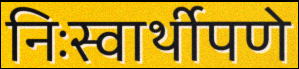
निःस्वार्थीपणे